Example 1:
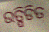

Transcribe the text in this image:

ଉତ୍ପିଡିତ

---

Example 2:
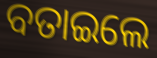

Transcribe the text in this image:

ବତାଇଲେ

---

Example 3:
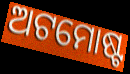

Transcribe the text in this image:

ଅଟମୋଷ୍ଟ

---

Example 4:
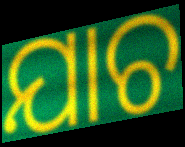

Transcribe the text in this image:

ଯାଚ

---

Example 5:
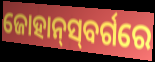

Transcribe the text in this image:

ଜୋହାନ୍‌ସ୍‌ବର୍ଗରେ